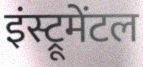
इंस्ट्रूमेंटल